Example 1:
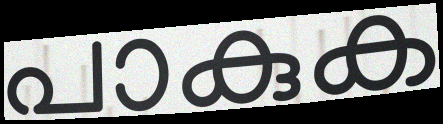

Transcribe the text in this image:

പാകുക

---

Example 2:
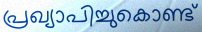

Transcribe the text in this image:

പ്രഖ്യാപിച്ചുകൊണ്ട്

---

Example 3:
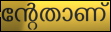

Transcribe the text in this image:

ന്റേതാണ്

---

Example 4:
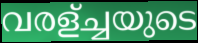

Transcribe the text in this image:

വരള്ച്ചയുടെ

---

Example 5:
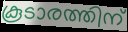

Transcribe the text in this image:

കൂടാരത്തിന്